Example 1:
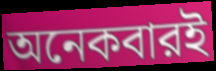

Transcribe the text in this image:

অনেকবারই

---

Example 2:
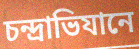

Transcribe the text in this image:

চন্দ্রাভিযানে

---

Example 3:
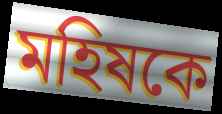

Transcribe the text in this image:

মহিষকে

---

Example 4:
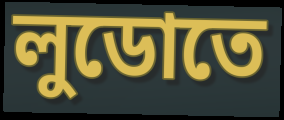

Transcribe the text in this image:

লুডোতে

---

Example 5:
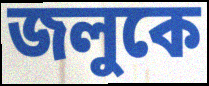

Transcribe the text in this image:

জলুকে